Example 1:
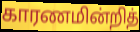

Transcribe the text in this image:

காரணமின்றித்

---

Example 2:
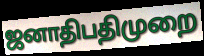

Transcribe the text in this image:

ஜனாதிபதிமுறை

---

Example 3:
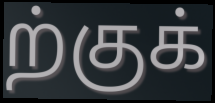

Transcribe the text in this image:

ற்குக்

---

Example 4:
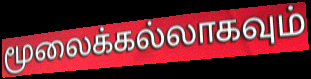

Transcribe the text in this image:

மூலைக்கல்லாகவும்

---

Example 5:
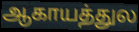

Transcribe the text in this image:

ஆகாயத்துல